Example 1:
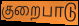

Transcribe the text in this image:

குறைபாடு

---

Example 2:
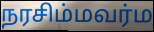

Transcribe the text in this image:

நரசிம்மவர்ம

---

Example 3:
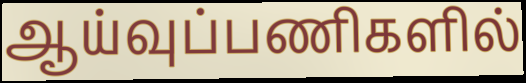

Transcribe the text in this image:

ஆய்வுப்பணிகளில்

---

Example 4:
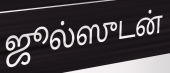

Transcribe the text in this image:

ஜூல்ஸுடன்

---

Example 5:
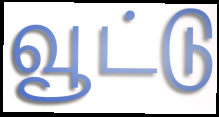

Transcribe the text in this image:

வூட்டு